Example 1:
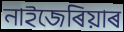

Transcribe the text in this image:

নাইজেৰিয়াৰ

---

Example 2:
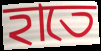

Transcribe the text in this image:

হাতে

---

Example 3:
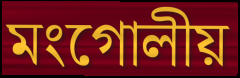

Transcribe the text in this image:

মংগোলীয়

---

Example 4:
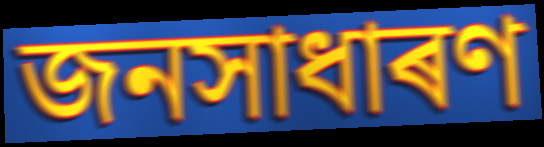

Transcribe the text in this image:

জনসাধাৰণ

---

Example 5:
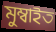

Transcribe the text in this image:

মুম্বাইত